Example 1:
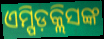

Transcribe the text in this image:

ଏମ୍ପିଡ଼କ୍ଲିସଙ୍କ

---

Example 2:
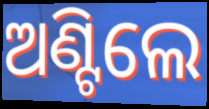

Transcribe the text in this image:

ଅଣ୍ଟିଲେ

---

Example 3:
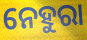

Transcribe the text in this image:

ନେହୁରା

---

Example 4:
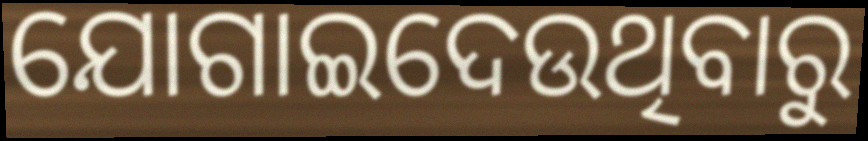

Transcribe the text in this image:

ଯୋଗାଇଦେଉଥିବାରୁ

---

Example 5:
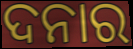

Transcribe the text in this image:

ଦନାର